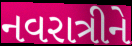
નવરાત્રીને